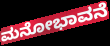
ಮನೋಭಾವನೆ